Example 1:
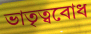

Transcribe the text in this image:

ভাতৃত্ববোধ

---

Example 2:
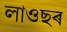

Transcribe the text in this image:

লাওছৰ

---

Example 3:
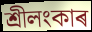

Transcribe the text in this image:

শ্ৰীলংকাৰ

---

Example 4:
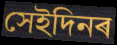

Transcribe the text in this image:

সেইদিনৰ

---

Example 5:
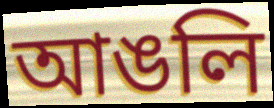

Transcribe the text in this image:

আঙলি